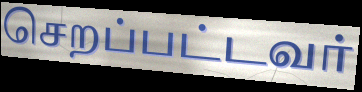
செறப்பட்டவர்